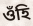
ওঁহি